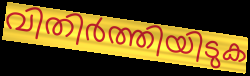
വിതിർത്തിയിടുക